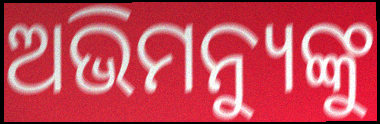
ଅଭିମନ୍ୟୁଙ୍କୁ